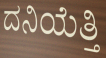
ದನಿಯೆತ್ತಿ